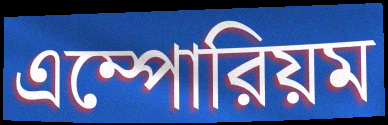
এম্পোরিয়ম